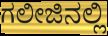
ಗಲೀಜಿನಲ್ಲಿ